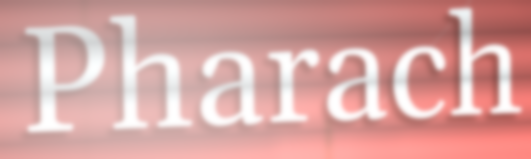
Pharach